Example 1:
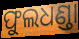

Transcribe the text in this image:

ଫୁଲଧଣ୍ଡା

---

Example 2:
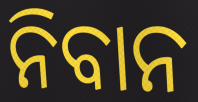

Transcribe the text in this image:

ନିବାନ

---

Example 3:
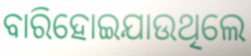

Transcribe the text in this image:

ବାରିହୋଇଯାଉଥିଲେ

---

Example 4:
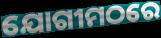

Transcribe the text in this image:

ଯୋଗୀମଠରେ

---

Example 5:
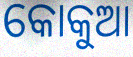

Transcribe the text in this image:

କୋକୁଆ